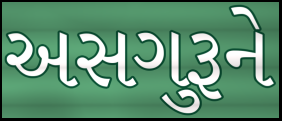
અસગુરૂને